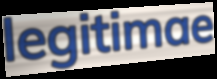
legitimae